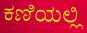
ಕಣಿಯಲ್ಲಿ